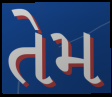
તેમ